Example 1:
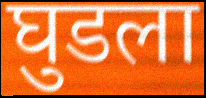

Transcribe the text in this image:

घुडला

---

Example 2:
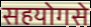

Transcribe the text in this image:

सहयोगसे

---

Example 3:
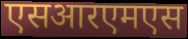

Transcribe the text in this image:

एसआरएमएस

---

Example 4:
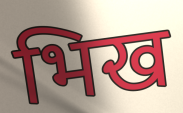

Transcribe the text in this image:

भिख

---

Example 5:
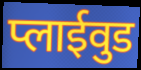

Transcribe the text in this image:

प्‍लाईवुड